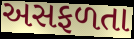
અસફળતા